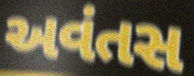
અવંતસ